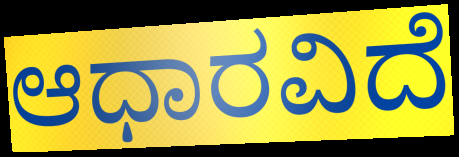
ಆಧಾರವಿದೆ